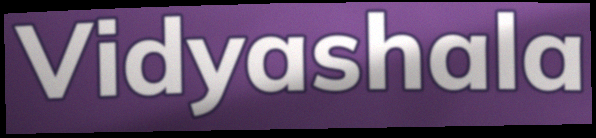
Vidyashala